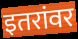
इतरांवर